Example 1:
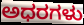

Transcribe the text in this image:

ಅಧರಗಳು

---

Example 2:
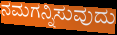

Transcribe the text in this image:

ನಮಗನ್ನಿಸುವುದು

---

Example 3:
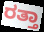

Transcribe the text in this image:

ರತ್ತಾ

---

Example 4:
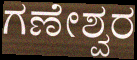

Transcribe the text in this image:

ಗಣೇಶ್ವರ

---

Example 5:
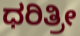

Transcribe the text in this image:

ಧರಿತ್ರೀ